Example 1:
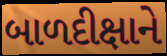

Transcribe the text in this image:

બાળદીક્ષાને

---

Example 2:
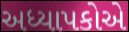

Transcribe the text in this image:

અધ્યાપકોએ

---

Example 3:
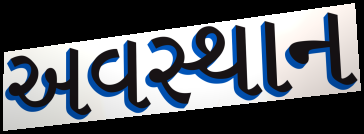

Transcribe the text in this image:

અવસ્થાન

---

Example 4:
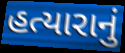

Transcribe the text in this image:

હત્યારાનું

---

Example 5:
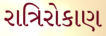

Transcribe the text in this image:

રાત્રિરોકાણ